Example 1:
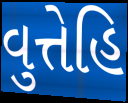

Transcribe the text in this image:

વુત્તેહિ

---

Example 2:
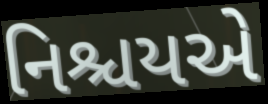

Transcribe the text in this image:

નિશ્ચયએ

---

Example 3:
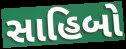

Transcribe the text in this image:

સાહિબો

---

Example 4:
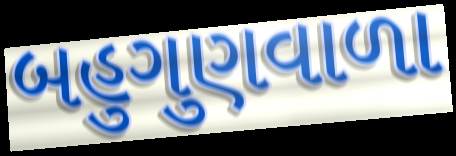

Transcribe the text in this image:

બહુગુણવાળા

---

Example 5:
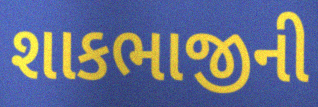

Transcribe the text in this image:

શાકભાજીની